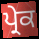
ਪ੍ਰੇਕ